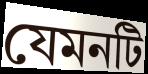
যেমনটি